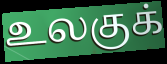
உலகுக்